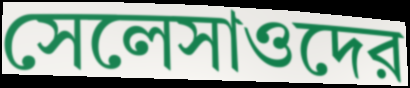
সেলেসাওদের